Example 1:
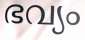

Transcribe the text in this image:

ഭവ്യം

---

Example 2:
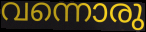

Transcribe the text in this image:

വന്നൊരു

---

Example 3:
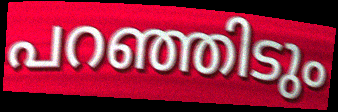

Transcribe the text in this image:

പറഞ്ഞിടും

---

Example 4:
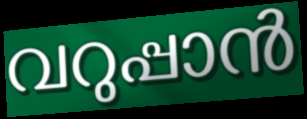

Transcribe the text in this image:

വറുപ്പാൻ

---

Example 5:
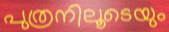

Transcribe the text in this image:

പുത്രനിലൂടെയും